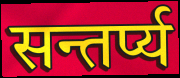
सन्तर्प्य